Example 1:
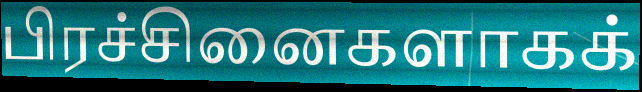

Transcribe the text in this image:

பிரச்சினைகளாகக்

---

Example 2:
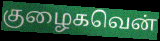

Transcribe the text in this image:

குழைகவென்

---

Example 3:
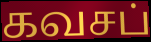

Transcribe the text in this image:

கவசப்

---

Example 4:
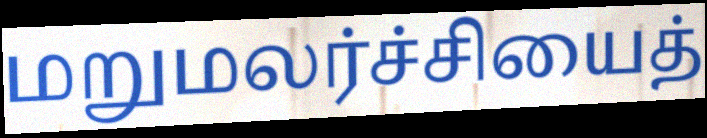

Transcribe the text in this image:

மறுமலர்ச்சியைத்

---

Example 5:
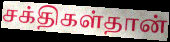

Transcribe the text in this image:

சக்திகள்தான்